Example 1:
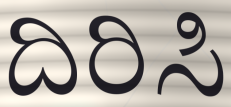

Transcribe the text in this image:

ದಿರಿಸಿ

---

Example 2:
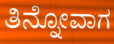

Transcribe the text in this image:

ತಿನ್ನೋವಾಗ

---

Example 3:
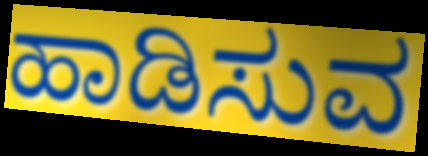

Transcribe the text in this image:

ಹಾಡಿಸುವ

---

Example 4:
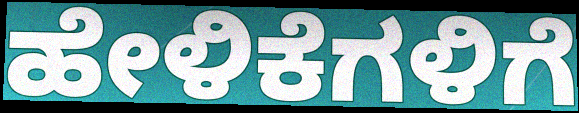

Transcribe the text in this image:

ಹೇಳಿಕೆಗಳಿಗೆ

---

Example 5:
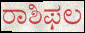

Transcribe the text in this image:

ರಾಶಿಫಲ